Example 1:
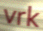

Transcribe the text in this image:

vrk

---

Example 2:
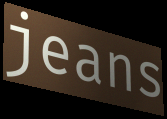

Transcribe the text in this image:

jeans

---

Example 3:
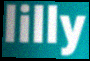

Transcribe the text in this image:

lilly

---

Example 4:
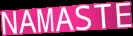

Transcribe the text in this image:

NAMASTE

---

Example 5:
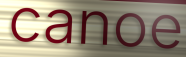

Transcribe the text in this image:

canoe